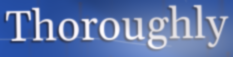
Thoroughly